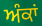
ਅੰਕਾਂ